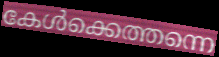
കേൾക്കെത്തന്നെ